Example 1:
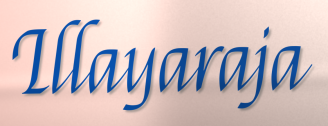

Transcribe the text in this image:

Illayaraja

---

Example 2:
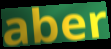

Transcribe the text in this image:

aber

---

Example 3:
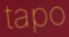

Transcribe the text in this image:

tapo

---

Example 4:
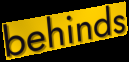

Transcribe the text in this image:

behinds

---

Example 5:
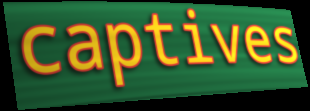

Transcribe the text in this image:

captives